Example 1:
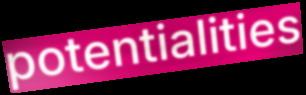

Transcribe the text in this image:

potentialities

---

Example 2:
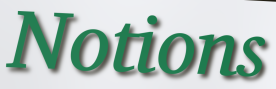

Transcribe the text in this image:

Notions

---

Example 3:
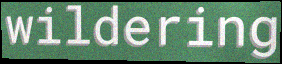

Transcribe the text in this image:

wildering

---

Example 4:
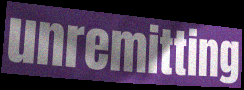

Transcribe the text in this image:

unremitting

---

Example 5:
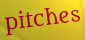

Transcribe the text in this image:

pitches